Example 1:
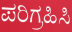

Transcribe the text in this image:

ಪರಿಗ್ರಹಿಸಿ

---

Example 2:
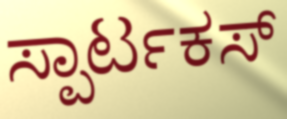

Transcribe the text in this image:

ಸ್ಪಾರ್ಟಕಸ್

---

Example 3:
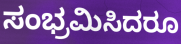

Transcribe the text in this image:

ಸಂಭ್ರಮಿಸಿದರೂ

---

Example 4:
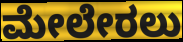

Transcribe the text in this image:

ಮೇಲೇರಲು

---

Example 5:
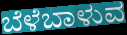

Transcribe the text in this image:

ಬೆಳೆಬಾಳುವ